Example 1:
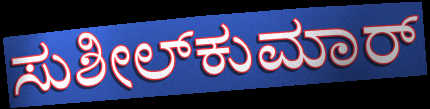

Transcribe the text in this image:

ಸುಶೀಲ್‌ಕುಮಾರ್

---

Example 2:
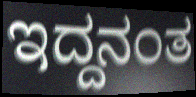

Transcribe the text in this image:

ಇದ್ದನಂತ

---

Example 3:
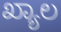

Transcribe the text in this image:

ಖ್ಯಾಲ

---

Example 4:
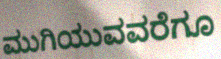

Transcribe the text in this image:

ಮುಗಿಯುವವರೆಗೂ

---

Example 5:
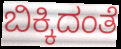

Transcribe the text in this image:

ಬಿಕ್ಕಿದಂತೆ